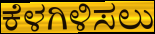
ಕೆಳಗಿಳಿಸಲು